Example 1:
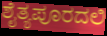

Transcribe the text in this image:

ಶೈತ್ಯಪೂರದಲಿ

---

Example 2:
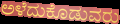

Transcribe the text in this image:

ಅಳೆದುಕೊಡುವರು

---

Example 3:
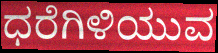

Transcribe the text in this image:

ಧರೆಗಿಳಿಯುವ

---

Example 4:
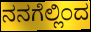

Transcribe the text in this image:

ನನಗೆಲ್ಲಿಂದ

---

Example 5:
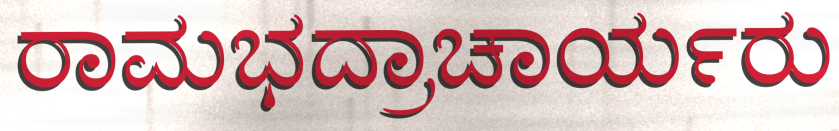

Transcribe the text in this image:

ರಾಮಭದ್ರಾಚಾರ್ಯರು